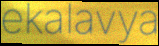
ekalavya